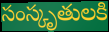
సంస్కృతులకి